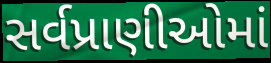
સર્વપ્રાણીઓમાં